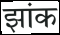
झांक